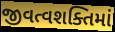
જીવત્વશક્તિમાં